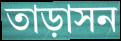
তাড়াসন